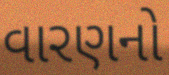
વારણનો